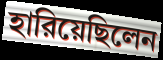
হারিয়েছিলেন